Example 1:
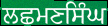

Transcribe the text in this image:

ਲਛਮਣਸਿੰਘ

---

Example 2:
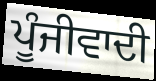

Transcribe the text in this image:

ਪੂੰਜੀਵਾਦੀ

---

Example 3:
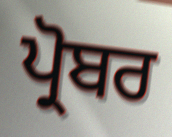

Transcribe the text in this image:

ਪ੍ਰੋਬਰ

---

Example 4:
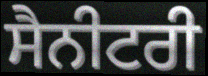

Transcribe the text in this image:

ਸੈਨੀਟਰੀ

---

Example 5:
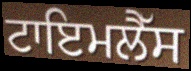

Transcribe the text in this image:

ਟਾਇਮਲੈੱਸ